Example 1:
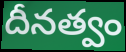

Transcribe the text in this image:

దీనత్వం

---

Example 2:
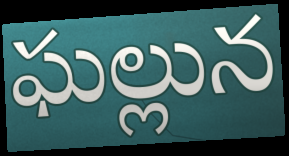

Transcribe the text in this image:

ఘల్లున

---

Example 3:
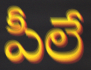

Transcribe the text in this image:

పీలే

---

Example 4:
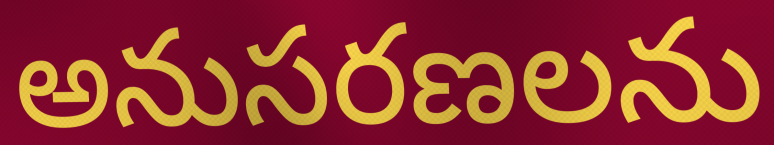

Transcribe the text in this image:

అనుసరణలను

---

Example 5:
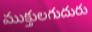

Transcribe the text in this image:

ముక్తులగుదురు